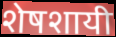
शेषशायी